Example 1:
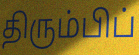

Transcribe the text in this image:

திரும்பிப்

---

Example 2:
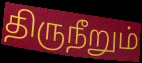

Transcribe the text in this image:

திருநீறும்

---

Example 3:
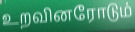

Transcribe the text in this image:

உறவினரோடும்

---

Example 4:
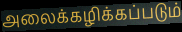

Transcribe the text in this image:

அலைக்கழிக்கப்படும்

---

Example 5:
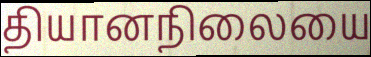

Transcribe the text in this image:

தியானநிலையை